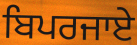
ਬਿਪਰਜਾਏ